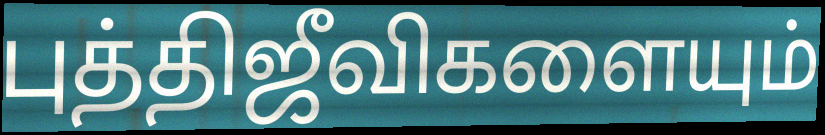
புத்திஜீவிகளையும்